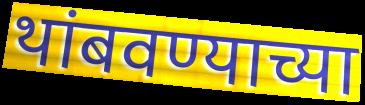
थांबवण्याच्या